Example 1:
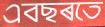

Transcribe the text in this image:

এবছৰতে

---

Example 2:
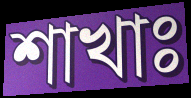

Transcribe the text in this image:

শাখাঃ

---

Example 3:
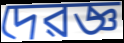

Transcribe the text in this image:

দেৱজ্ঞ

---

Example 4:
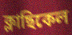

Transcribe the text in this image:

ক্লাছিকেল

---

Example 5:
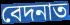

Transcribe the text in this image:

বেদনাত